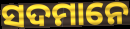
ସଦମାନେ